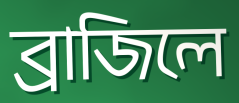
ব্রাজিলে